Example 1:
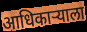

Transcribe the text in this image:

आधिकाऱ्याला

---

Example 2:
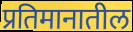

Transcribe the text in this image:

प्रतिमानातील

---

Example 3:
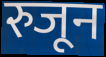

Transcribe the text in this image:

रुजून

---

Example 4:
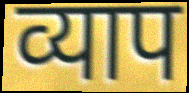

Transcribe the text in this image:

व्याप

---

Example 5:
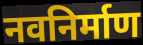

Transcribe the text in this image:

नवनिर्माण